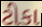
ટીકા